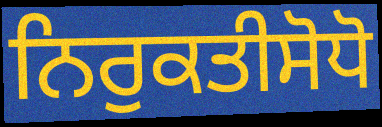
ਨਿਰੁਕਤੀਸੋਧੋ